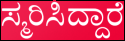
ಸ್ಮರಿಸಿದ್ದಾರೆ